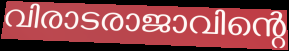
വിരാടരാജാവിന്റെ